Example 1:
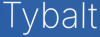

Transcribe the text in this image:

Tybalt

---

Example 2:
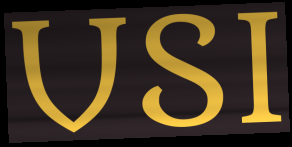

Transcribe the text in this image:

USI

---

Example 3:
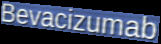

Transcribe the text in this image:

Bevacizumab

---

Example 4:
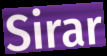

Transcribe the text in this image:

Sirar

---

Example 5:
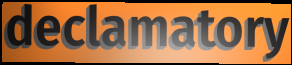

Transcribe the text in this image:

declamatory